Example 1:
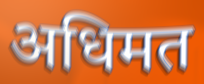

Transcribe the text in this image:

अधिमत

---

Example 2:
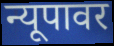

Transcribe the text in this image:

न्यूपावर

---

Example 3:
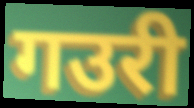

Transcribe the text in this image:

गउरी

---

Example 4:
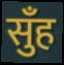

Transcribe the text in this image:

सुँह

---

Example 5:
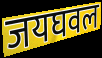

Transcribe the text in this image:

जयघवल